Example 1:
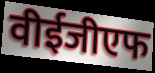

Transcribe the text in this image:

वीईजीएफ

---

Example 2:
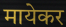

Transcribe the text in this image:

मायेकर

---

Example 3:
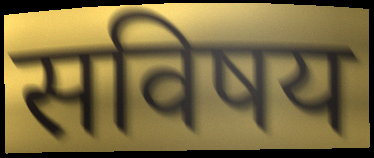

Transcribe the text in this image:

सविषय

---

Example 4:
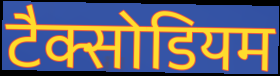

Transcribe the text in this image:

टैक्सोडियम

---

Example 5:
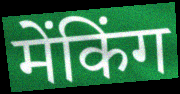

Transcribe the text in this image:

मेंकिंग